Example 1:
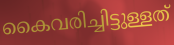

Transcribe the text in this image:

കൈവരിച്ചിട്ടുള്ളത്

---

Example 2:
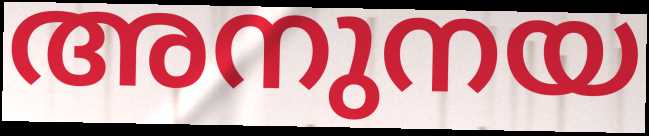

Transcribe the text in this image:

അനുനയ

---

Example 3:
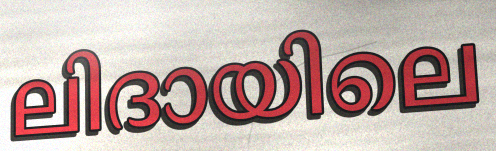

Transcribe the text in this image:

ലിദായിലെ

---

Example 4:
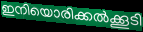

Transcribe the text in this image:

ഇനിയൊരിക്കൽക്കൂടി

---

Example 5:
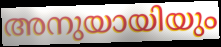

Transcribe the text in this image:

അനുയായിയും